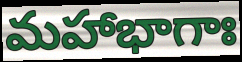
మహాభాగాః